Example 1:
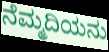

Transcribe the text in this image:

ನೆಮ್ಮದಿಯನು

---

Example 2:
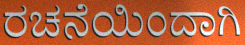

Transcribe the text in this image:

ರಚನೆಯಿಂದಾಗಿ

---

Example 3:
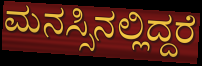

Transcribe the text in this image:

ಮನಸ್ಸಿನಲ್ಲಿದ್ದರೆ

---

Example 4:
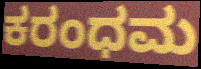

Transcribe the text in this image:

ಕರಂಧಮ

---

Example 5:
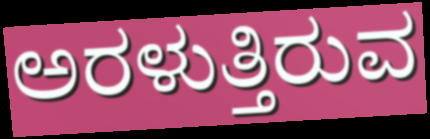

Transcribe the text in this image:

ಅರಳುತ್ತಿರುವ